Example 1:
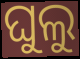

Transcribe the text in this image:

ଘୁଲୁ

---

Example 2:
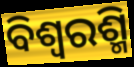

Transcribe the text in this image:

ବିଶ୍ୱରଶ୍ମି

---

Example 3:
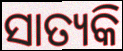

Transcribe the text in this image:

ସାତ୍ୟକି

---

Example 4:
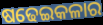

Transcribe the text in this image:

ଷଢେଇକଳାର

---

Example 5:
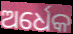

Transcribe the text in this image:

ଅର୍ଧେକ